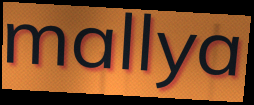
mallya